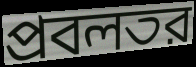
প্রবলতর